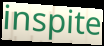
inspite